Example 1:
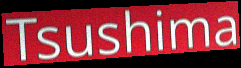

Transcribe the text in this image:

Tsushima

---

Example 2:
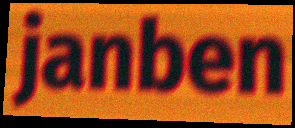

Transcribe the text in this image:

janben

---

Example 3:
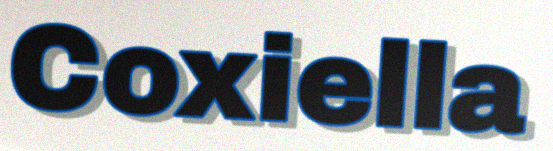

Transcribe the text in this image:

Coxiella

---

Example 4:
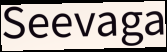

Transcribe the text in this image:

Seevaga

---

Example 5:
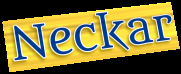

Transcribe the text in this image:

Neckar